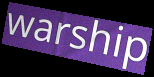
warship